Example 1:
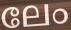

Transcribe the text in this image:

ലേം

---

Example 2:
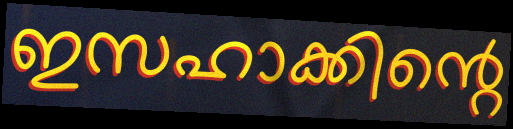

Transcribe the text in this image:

ഇസഹാക്കിന്റെ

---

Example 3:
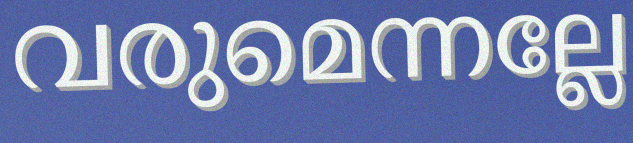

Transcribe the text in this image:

വരുമെന്നല്ലേ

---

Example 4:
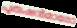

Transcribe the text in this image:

പുരുഷൻമാരോ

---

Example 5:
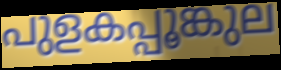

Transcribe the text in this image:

പുളകപ്പൂങ്കുല